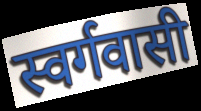
स्वर्गवासी